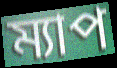
ম্যাপ